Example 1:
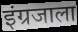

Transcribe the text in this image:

इंग्रजाला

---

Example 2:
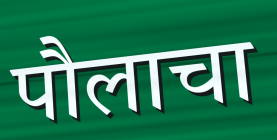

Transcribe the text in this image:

पौलाचा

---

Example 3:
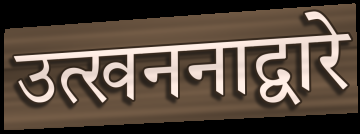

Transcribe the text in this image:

उत्खननाद्वारे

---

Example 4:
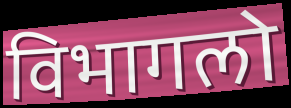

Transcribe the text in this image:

विभागलो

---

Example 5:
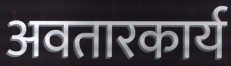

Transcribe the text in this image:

अवतारकार्य